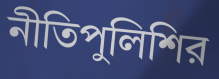
নীতিপুলিশির